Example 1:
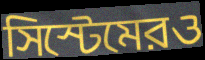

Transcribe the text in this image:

সিস্টেমেরও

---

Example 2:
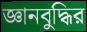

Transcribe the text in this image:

জ্ঞানবুদ্ধির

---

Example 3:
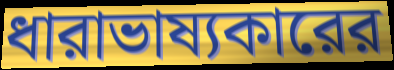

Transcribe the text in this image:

ধারাভাষ্যকারের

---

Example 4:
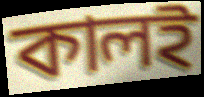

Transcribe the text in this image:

কালই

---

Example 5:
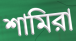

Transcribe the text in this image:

শামিরা